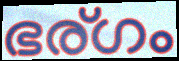
ഭര്ഗം